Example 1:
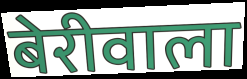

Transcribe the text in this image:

बेरीवाला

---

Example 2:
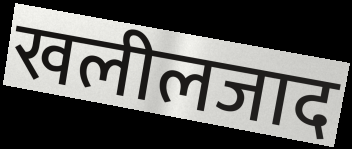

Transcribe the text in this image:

खलीलजाद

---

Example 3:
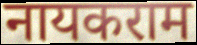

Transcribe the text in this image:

नायकराम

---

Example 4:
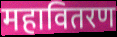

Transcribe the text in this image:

महावितरण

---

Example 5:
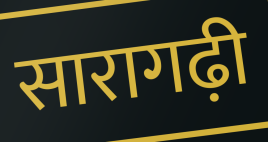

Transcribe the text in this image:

सारागढ़ी